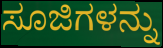
ಸೂಜಿಗಳನ್ನು